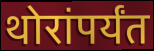
थोरांपर्यंत